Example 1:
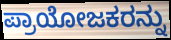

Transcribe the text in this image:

ಪ್ರಾಯೋಜಕರನ್ನು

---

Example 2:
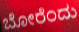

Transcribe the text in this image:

ಬೋರೆಂದು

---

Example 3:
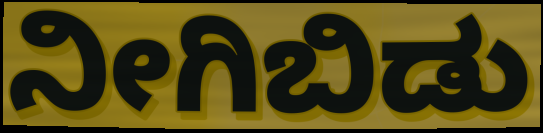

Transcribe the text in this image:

ನೀಗಿಬಿಡು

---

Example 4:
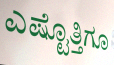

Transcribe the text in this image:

ಎಷ್ಟೊತ್ತಿಗೂ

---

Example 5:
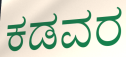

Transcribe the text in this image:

ಕಡವರ